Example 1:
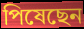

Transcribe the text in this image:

পিষেছেন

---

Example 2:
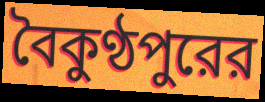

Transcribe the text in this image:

বৈকুণ্ঠপুরের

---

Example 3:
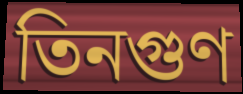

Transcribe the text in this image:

তিনগুণ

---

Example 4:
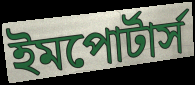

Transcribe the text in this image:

ইমপোর্টার্স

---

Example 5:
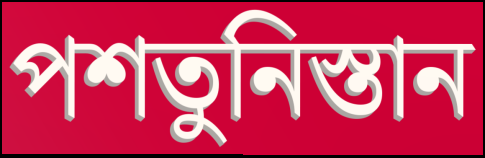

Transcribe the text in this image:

পশতুনিস্তান